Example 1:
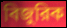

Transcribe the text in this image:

বিজুরিক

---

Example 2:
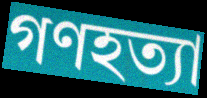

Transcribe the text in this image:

গণহত্যা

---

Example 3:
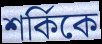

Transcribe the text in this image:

শর্কিকে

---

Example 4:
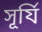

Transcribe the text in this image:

সূর্যি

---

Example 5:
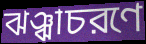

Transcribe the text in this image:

ঝঞ্ঝাচরণে